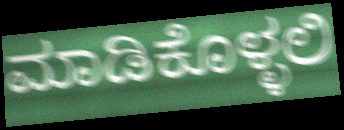
ಮಾಡಿಕೊಳ್ಳಲಿ